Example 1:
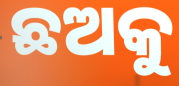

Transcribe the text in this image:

ଛଅକୁ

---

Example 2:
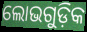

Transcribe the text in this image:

ଲୋଭଗୁଡ଼ିକ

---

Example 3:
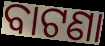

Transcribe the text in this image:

ବାଟଣା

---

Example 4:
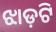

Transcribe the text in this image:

ଝାଡ଼ଟି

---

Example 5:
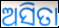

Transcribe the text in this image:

ଅସିତା